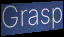
Grasp